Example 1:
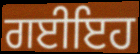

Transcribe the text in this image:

ਗਈਇਹ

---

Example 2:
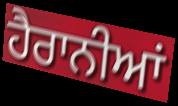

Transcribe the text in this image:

ਹੈਰਾਨੀਆਂ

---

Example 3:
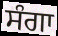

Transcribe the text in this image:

ਸੰਗਾ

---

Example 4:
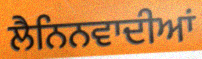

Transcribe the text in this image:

ਲੈਨਿਨਵਾਦੀਆਂ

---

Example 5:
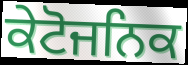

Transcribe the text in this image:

ਕੇਟੋਜਨਿਕ